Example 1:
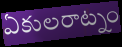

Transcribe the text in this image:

ఏకులరాట్నం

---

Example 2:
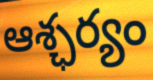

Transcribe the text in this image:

ఆశ్ఛర్యం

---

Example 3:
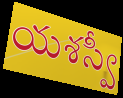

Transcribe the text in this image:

యశస్వీ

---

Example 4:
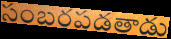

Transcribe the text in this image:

సంబరపడతాడు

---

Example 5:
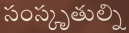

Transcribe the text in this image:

సంస్కృతుల్ని